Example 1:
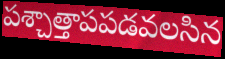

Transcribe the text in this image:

పశ్చాత్తాపపడవలసిన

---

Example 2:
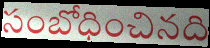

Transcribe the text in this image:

సంబోధించినది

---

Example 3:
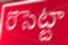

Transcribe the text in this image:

రొసెట్టా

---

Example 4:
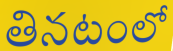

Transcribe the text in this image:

తినటంలో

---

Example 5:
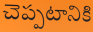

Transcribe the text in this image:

చెప్పటానికి